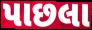
પાછલા